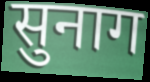
सुनाग